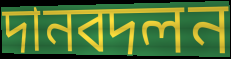
দানবদলন